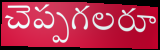
చెప్పగలరూ